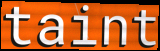
taint